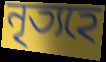
নৃত্যহে